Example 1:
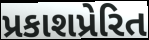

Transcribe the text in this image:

પ્રકાશપ્રેરિત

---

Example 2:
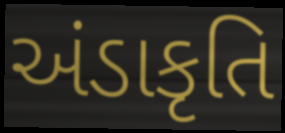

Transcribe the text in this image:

અંડાકૃતિ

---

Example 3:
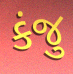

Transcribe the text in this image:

કંજુ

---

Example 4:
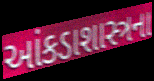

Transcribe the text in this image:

આંકડાશાસ્ત્રના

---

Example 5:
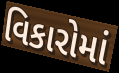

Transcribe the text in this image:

વિકારોમાં